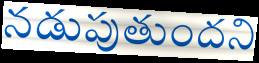
నడుపుతుందని